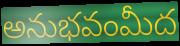
అనుభవంమీద